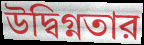
উদ্বিগ্নতার